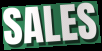
SALES